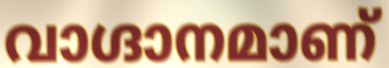
വാഗ്ദാനമാണ്